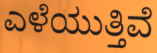
ಎಳೆಯುತ್ತಿವೆ